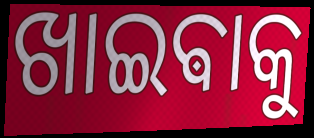
ଖାଇଵାକୁ